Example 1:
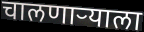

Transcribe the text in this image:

चालणाऱ्याला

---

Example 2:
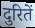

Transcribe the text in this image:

दुरितें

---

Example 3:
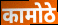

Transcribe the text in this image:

कामोठे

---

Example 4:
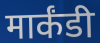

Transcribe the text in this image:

मार्कंडी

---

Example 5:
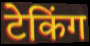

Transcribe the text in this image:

टेकिंग